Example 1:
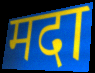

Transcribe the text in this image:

मदा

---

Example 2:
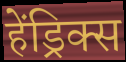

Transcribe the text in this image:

हेंड्रिक्स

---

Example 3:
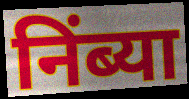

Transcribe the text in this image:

निंब्या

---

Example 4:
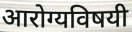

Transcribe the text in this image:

आरोग्यविषयी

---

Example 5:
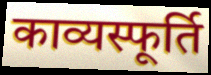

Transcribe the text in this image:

काव्यस्फूर्ति